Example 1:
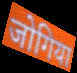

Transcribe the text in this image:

जोगिया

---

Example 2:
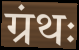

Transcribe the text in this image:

ग्रंथः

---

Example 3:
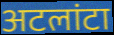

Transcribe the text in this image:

अटलांटा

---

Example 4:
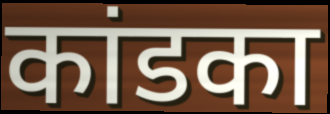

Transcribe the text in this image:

कांडका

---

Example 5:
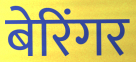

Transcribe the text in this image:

बेरिंगर